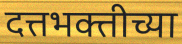
दत्तभक्तीच्या